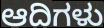
ಆದಿಗಳು